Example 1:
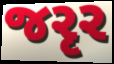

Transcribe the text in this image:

જરૃર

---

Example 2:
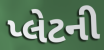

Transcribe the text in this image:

પ્લેટની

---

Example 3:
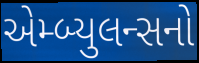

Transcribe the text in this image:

એમ્બ્યુલન્સનો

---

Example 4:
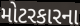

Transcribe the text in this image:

મોટરકારના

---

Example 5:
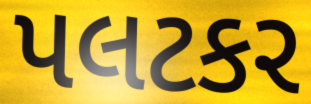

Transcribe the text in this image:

પલટકર